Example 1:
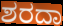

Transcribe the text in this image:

ಶರದಾ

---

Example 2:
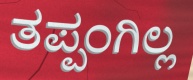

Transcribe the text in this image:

ತಪ್ಪಂಗಿಲ್ಲ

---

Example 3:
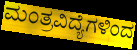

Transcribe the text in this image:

ಮಂತ್ರವಿದ್ಯೆಗಳಿಂದ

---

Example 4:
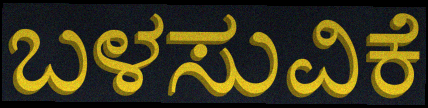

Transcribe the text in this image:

ಬಳಸುವಿಕೆ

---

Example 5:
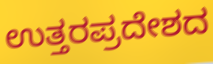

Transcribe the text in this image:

ಉತ್ತರಪ್ರದೇಶದ